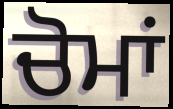
ਚੋਮਾਂ